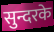
सुन्दरके